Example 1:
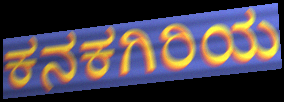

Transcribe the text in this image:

ಕನಕಗಿರಿಯ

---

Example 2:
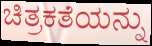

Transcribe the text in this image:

ಚಿತ್ರಕತೆಯನ್ನು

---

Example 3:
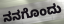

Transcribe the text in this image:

ನನಗೊಂದು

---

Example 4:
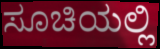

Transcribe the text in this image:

ಸೂಚಿಯಲ್ಲಿ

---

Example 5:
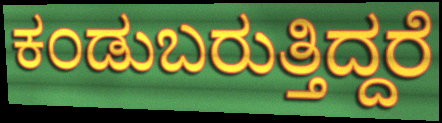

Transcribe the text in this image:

ಕಂಡುಬರುತ್ತಿದ್ದರೆ